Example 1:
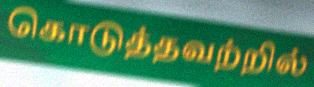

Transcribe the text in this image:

கொடுத்தவற்றில்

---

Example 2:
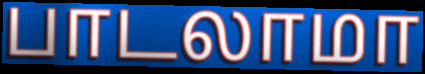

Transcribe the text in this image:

பாடலாமா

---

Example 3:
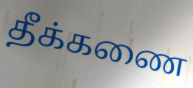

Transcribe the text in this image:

தீக்கணை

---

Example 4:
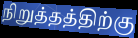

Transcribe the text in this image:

நிறுத்தத்திற்கு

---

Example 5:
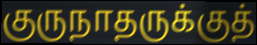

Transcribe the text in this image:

குருநாதருக்குத்